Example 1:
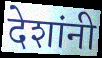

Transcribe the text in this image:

देशांनी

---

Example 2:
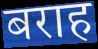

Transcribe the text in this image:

बराह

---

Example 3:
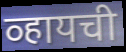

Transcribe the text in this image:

व्हायची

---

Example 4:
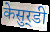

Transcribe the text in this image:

केसुर्डी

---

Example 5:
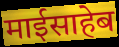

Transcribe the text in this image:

माईसाहेब